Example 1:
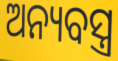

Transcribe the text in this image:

ଅନ୍ୟବସ୍ତ୍ର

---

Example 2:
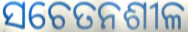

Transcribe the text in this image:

ସଚେତନଶୀଳ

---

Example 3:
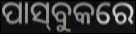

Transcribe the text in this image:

ପାସ୍‌ବୁକରେ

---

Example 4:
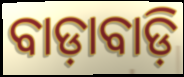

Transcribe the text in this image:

ବାଡ଼ାବାଡ଼ି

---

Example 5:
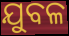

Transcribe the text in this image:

ଯୁବଳ